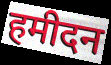
हमीदन